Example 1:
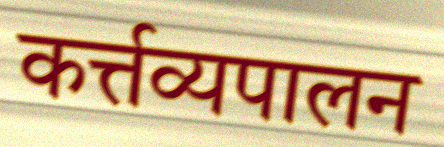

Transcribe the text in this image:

कर्त्तव्यपालन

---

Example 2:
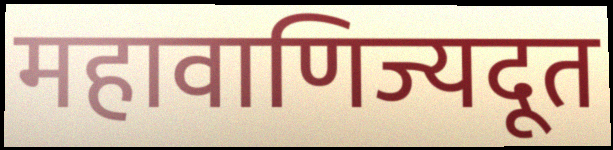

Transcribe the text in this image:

महावाणिज्यदूत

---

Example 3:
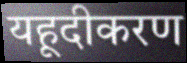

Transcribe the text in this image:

यहूदीकरण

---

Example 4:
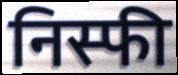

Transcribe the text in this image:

निस्फी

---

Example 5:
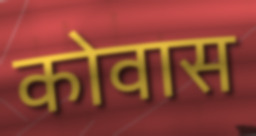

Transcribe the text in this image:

कोवास